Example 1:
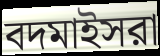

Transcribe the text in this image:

বদমাইসরা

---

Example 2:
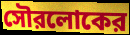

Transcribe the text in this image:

সৌরলোকের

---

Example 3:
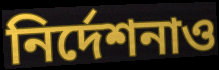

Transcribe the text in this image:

নির্দেশনাও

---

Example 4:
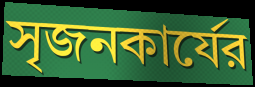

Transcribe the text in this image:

সৃজনকার্যের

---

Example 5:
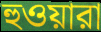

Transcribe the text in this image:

হুওয়ারা